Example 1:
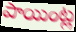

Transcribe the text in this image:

పాయింట్ల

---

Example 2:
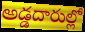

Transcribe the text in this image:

అడ్డదారుల్లో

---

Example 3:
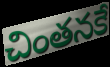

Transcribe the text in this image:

చింతనకే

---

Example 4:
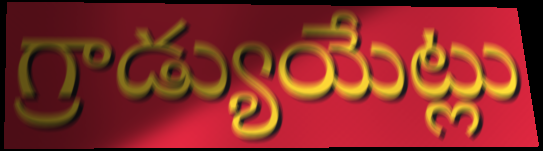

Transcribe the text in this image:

గ్రాడ్యుయేట్లు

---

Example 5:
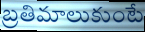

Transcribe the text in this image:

బ్రతిమాలుకుంటే